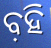
ବ଼ହି